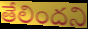
తేలిందని